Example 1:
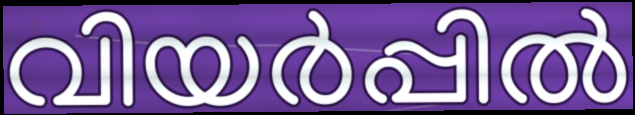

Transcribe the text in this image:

വിയർപ്പിൽ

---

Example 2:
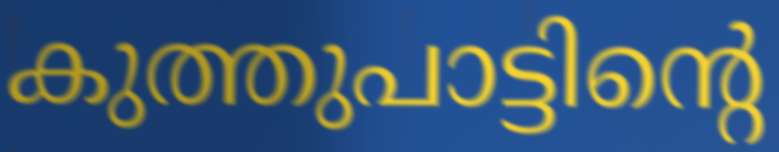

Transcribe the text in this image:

കുത്തുപാട്ടിന്റെ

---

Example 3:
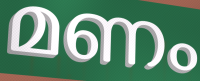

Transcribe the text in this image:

മണം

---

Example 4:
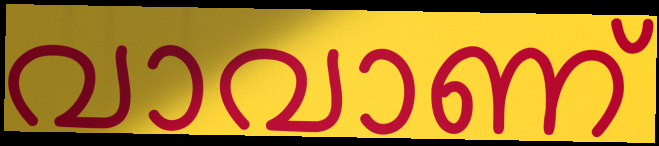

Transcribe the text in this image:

വാവാണ്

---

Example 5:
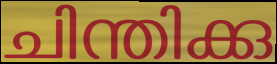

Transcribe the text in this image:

ചിന്തിക്കു